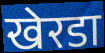
खेरडा